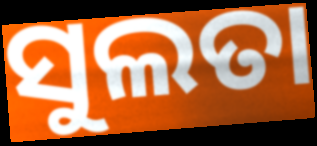
ସୁଲତା